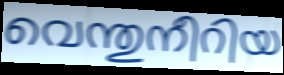
വെന്തുനീറിയ